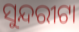
ସୁନ୍ଦରୀଟା